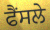
ਫੈਂਸਲੇ